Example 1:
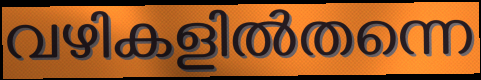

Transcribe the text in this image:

വഴികളിൽതന്നെ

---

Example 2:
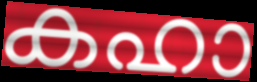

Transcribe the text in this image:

കഹാ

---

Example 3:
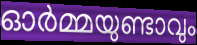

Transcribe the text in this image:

ഓർമ്മയുണ്ടാവും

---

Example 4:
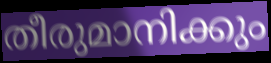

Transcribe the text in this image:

തീരുമാനിക്കും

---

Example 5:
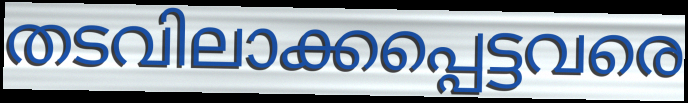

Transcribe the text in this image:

തടവിലാക്കപ്പെട്ടവരെ